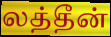
லத்தீன்